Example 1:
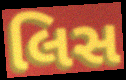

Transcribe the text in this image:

લિસ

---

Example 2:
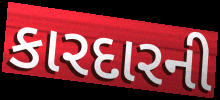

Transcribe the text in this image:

કારદારની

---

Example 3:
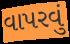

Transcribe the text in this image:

વાપરવું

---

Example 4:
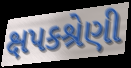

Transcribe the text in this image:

ક્ષપકશ્રેણી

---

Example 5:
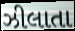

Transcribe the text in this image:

ઝીલાતા